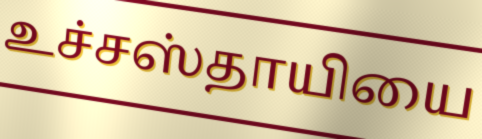
உச்சஸ்தாயியை